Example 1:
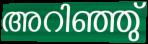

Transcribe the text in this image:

അറിഞ്ഞു്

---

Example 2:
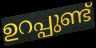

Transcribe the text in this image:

ഉറപ്പുണ്ട്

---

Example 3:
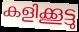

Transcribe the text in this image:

കളിക്കൂട്ടു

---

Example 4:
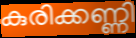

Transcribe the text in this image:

കുരിക്കണ്ണി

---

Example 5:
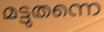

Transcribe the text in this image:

മട്ടുതന്നെ